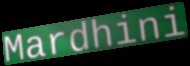
Mardhini